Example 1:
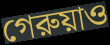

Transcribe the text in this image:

গেরুয়াও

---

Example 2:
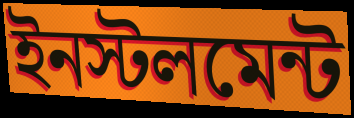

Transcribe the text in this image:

ইনস্টলমেন্ট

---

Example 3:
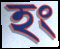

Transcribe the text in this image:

হং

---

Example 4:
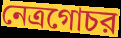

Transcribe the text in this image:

নেত্রগোচর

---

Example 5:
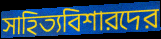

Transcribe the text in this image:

সাহিত্যবিশারদের